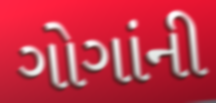
ગોગાંની